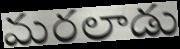
మరలాడు